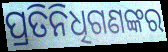
ପ୍ରତିନିଧିଗଣଙ୍କର